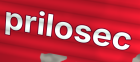
prilosec